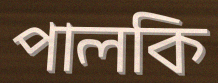
পালকি